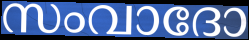
സംവാദോ